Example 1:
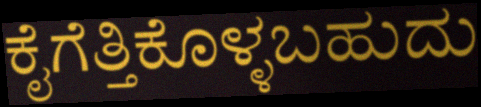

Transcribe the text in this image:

ಕೈಗೆತ್ತಿಕೊಳ್ಳಬಹುದು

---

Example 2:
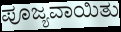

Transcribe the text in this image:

ಪೂಜ್ಯವಾಯಿತು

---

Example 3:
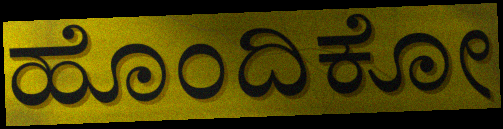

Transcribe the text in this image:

ಹೊಂದಿಕೋ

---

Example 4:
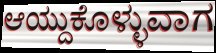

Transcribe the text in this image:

ಆಯ್ದುಕೊಳ್ಳುವಾಗ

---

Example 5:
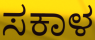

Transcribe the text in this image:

ಸಕಾಳ